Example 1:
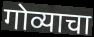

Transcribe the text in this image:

गोव्याचा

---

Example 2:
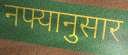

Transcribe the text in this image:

नफ्यानुसार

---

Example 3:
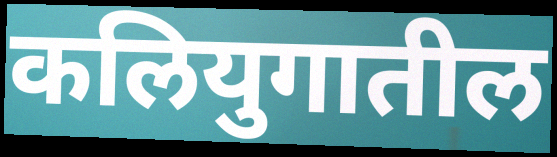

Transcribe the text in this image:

कलियुगातील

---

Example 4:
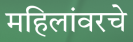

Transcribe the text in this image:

महिलांवरचे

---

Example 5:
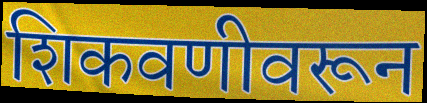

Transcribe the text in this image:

शिकवणीवरून